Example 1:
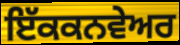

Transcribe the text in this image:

ਇੱਕਕਨਵੇਅਰ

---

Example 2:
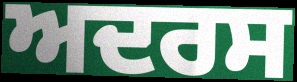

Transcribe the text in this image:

ਅਦਰਸ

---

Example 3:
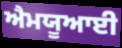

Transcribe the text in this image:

ਐਮਯੂਆਈ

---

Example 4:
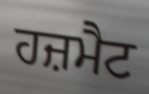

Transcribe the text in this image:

ਹਜ਼ਮੈਟ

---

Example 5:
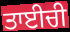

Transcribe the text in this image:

ਤਾਈਚੀ